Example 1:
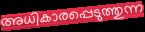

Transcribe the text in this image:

അധികാരപ്പെടുത്തുന്ന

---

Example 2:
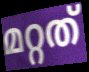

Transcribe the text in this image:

മറ്റത്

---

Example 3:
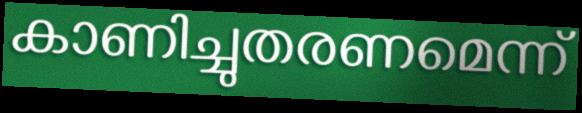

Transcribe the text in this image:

കാണിച്ചുതരണമെന്ന്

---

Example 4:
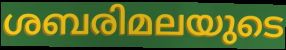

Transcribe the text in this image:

ശബരിമലയുടെ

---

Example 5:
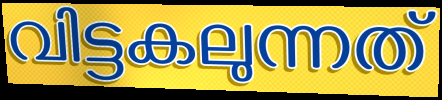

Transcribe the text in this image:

വിട്ടകലുന്നത്